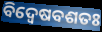
ବିଦ୍ୱେଷବଶତଃ